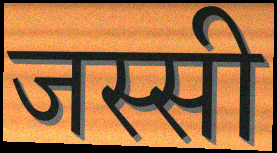
जस्सी